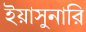
ইয়াসুনারি